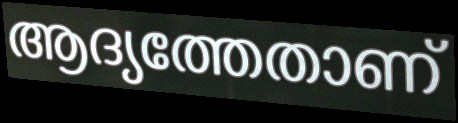
ആദ്യത്തേതാണ്